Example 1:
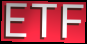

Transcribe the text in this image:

ETF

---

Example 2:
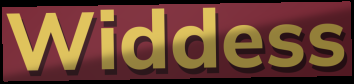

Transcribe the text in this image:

Widdess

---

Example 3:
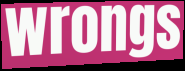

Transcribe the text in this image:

wrongs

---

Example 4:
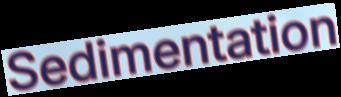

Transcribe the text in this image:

Sedimentation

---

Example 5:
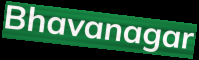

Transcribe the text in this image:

Bhavanagar